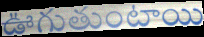
ఊగుతుంటాయి